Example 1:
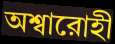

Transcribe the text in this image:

অশ্বারোহী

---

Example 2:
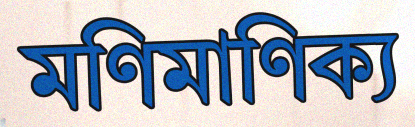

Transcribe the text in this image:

মণিমাণিক্য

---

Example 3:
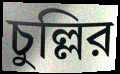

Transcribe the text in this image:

চুল্লির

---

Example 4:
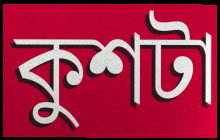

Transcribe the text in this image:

কুশটা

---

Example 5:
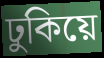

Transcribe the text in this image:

ঢুকিয়ে